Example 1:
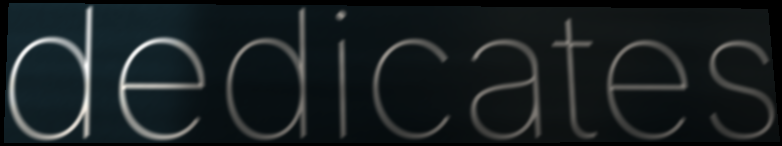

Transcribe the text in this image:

dedicates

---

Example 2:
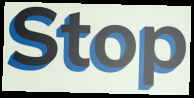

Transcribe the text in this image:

Stop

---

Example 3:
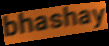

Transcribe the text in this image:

bhashay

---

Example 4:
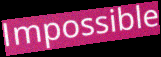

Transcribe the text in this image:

Impossible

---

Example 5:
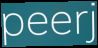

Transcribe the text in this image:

peerj